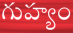
గుహ్యం